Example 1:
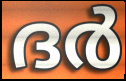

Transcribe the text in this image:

ദർ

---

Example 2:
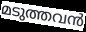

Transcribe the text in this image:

മടുത്തവൻ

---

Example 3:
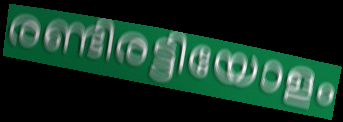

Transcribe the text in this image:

രണ്ടിരട്ടിയോളം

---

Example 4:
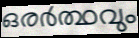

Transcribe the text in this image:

ഒരർത്ഥവും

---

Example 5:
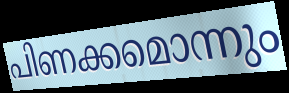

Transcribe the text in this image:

പിണക്കമൊന്നും